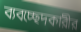
ব্যবচ্ছেদকারীর